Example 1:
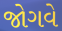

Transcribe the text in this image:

જોગવે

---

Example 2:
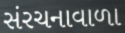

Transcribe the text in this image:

સંરચનાવાળા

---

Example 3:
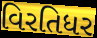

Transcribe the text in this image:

વિરતિધર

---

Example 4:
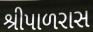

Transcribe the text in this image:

શ્રીપાળરાસ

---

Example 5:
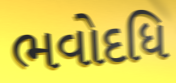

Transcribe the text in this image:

ભવોદધિ